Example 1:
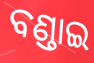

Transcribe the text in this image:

ବଣ୍ଡାଇ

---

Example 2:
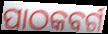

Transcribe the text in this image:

ପାଠକବର୍ଗ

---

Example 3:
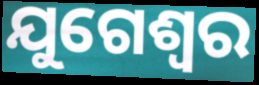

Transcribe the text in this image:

ଯୁଗେଶ୍ଵର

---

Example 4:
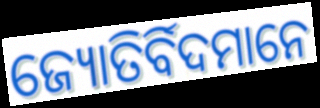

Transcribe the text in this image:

ଜ୍ୟୋତିର୍ବିଦମାନେ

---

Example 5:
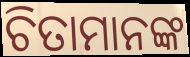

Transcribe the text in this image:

ଚିତାମାନଙ୍କ